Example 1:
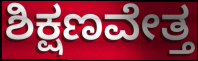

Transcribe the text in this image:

ಶಿಕ್ಷಣವೇತ್ತ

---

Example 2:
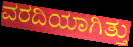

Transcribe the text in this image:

ವರದಿಯಾಗಿತ್ತು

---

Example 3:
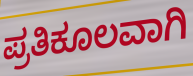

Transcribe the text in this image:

ಪ್ರತಿಕೂಲವಾಗಿ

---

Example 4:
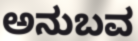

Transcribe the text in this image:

ಅನುಬವ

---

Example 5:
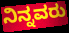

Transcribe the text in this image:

ನಿನ್ನವರು